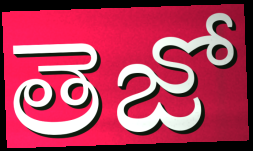
తెజో